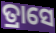
ତ୍ରାସେ